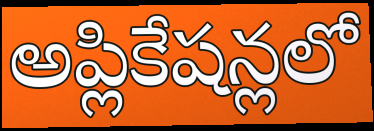
అప్లికేషన్లలో